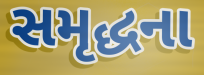
સમૃદ્ધના